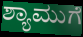
ಶ್ಯಾಮುಗೆ